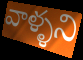
వాళ్ళని